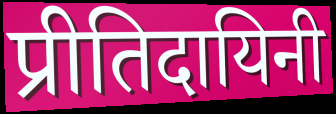
प्रीतिदायिनी